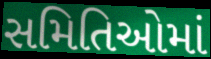
સમિતિઓમાં